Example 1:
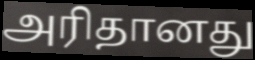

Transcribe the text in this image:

அரிதானது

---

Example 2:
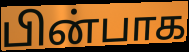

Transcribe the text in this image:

பின்பாக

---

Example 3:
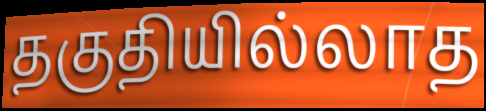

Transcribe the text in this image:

தகுதியில்லாத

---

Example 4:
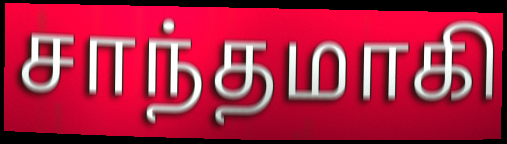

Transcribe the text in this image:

சாந்தமாகி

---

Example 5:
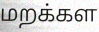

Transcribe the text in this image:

மறக்கள